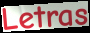
Letras